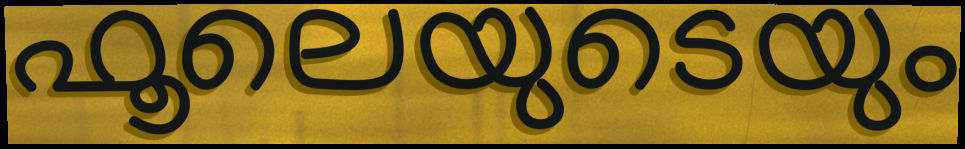
ഫൂലെയുടെയും